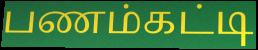
பணம்கட்டி